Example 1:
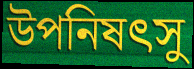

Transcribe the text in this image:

উপনিষৎসু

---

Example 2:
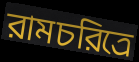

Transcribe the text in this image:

রামচরিত্রে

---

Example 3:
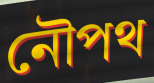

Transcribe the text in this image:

নৌপথ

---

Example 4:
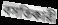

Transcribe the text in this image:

বসতিকারী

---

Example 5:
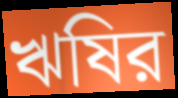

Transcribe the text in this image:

ঋষির